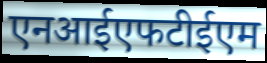
एनआईएफटीईएम